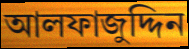
আলফাজুদ্দিন